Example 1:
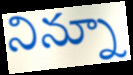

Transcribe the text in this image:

నిన్నూ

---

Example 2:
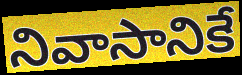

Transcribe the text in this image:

నివాసానికే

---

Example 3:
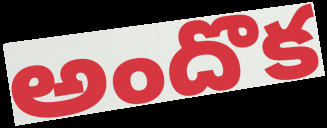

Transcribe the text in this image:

అందొక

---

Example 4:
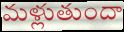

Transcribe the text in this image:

మళ్లుతుందా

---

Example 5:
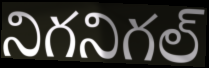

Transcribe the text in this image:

నిగనిగల్